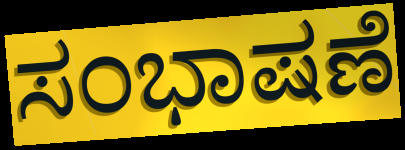
ಸಂಭಾಷಣೆ